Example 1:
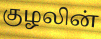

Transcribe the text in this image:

குழலின்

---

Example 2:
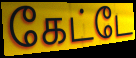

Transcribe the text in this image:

கேட்டே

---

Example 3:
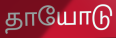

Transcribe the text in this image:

தாயோடு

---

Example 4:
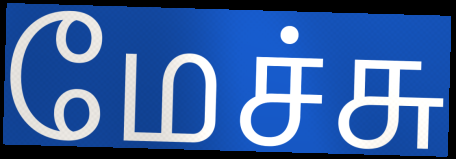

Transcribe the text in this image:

மேச்சு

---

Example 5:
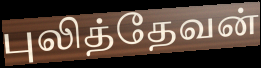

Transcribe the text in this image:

புலித்தேவன்